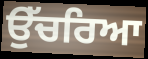
ਉੱਚਰਿਆ